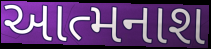
આત્મનાશ